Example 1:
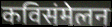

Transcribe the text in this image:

कविसंमेलन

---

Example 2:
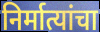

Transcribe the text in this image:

निर्मात्यांचा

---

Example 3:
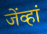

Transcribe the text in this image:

जेंव्हां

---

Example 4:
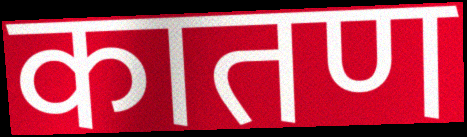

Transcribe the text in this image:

कातण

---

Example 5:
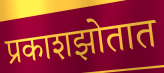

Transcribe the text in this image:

प्रकाशझोतात